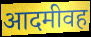
आदमीवह